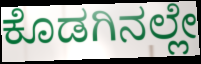
ಕೊಡಗಿನಲ್ಲೇ